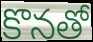
కొనతో